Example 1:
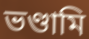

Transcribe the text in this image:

ভণ্ডামি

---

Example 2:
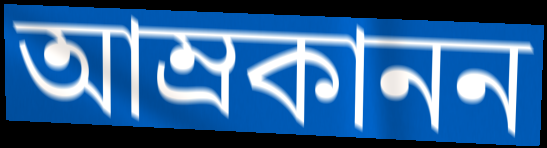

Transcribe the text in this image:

আম্রকানন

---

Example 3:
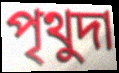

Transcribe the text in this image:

পৃথুদা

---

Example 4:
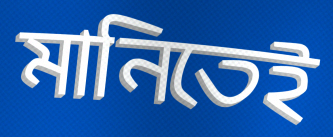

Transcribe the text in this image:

মানিতেই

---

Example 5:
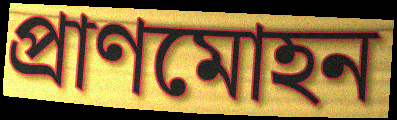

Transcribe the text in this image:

প্রাণমোহন